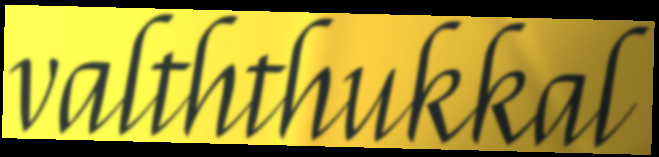
valththukkal